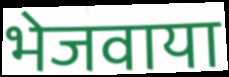
भेजवाया